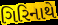
ગિરિનાથે